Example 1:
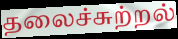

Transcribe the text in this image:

தலைச்சுற்றல்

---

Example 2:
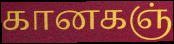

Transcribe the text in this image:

கானகஞ்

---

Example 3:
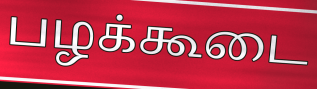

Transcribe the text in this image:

பழக்கூடை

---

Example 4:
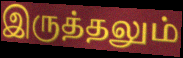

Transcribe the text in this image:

இருத்தலும்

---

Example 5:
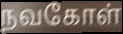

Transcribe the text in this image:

நவகோள்